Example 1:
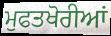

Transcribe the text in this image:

ਮੁਫਤਖੋਰੀਆਂ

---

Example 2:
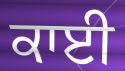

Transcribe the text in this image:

ਕਾਈ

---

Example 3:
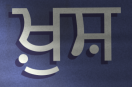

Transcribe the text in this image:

ਖ਼ੁਸ਼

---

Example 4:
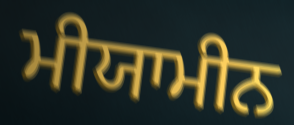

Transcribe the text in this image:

ਮੀਯਾਮੀਨ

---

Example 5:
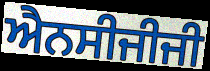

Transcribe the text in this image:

ਐਨਸੀਜੀਜੀ